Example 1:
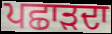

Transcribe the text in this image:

ਪਛਾੜਦਾ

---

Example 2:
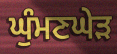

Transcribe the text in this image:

ਘੁੰਮਣਘੇੜ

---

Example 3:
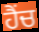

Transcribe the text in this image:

ਹੈਂਚ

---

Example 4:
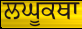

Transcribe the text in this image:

ਲਘੂਕਥਾ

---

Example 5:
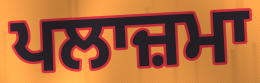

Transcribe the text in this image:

ਪਲਾਜ਼ਮਾ